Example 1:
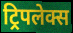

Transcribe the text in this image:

ट्रिपलेक्स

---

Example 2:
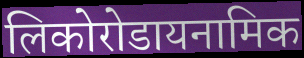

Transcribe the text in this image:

लिकोरोडायनामिक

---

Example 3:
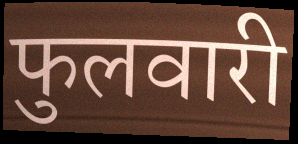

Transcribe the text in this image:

फुलवारी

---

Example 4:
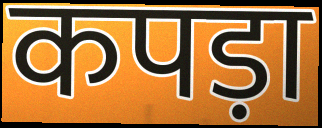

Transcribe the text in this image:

कपड़ा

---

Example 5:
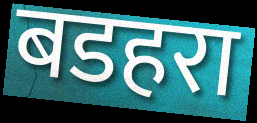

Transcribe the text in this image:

बडहरा